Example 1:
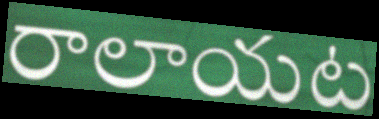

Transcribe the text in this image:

రాలాయట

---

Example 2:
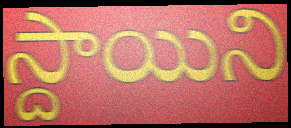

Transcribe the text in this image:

స్దాయిని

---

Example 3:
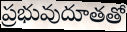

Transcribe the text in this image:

ప్రభువుదూతతో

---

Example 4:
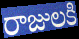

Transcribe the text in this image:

రాజులకి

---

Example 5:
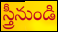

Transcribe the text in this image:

స్త్రీనుండి